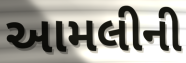
આમલીની